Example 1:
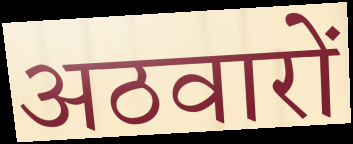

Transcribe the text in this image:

अठवारों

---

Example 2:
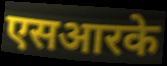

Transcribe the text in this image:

एसआरके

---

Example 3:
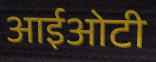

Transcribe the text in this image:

आईओटी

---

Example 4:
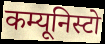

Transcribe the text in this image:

कम्यूनिस्टो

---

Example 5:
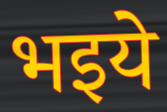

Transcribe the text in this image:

भइये